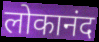
लोकानंद